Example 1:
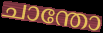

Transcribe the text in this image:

ചാന്തോ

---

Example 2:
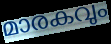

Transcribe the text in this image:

മാരകവും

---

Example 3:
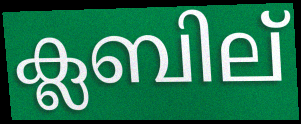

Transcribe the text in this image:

ക്ലബില്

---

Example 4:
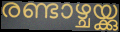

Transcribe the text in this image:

രണ്ടാഴ്ചയ്ക്കു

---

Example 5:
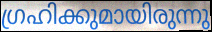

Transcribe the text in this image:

ഗ്രഹിക്കുമായിരുന്നു